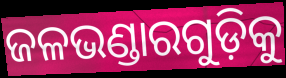
ଜଳଭଣ୍ଡାରଗୁଡ଼ିକୁ